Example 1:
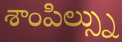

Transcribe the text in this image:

శాంపిల్స్ను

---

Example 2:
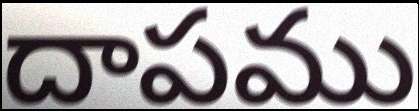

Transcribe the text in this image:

దాపము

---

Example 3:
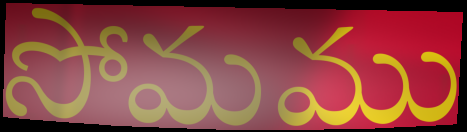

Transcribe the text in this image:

సోమము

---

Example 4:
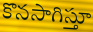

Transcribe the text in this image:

కొనసాగిస్తూ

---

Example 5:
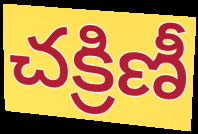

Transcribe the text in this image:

చక్రిణీ